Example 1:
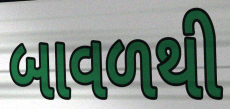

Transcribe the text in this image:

બાવળથી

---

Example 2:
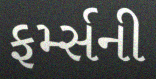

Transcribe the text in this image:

ફર્મ્સની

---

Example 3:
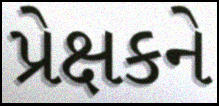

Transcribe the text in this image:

પ્રેક્ષકને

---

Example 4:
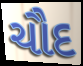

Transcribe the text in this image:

ચૌદ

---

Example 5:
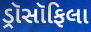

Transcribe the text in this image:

ડ્રૉસૉફિલા